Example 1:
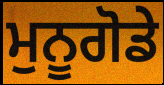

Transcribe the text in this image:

ਮੁਨੂਗੋਡੇ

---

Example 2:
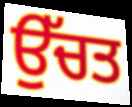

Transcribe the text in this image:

ਉੱਚਤ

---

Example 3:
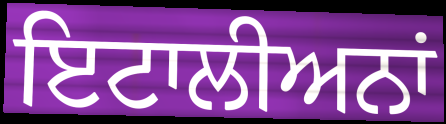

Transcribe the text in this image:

ਇਟਾਲੀਅਨਾਂ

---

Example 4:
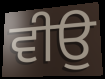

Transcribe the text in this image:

ਵੀਉ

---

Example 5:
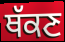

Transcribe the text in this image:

ਥੱਕਣ